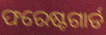
ଫରେଷ୍ଟଗାର୍ଡ